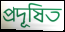
প্ৰদূষিত